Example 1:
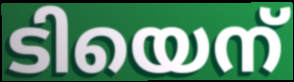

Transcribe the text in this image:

ടിയെന്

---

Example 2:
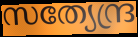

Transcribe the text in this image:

സത്യേന്ദ്ര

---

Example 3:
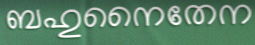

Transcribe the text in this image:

ബഹുനൈതേന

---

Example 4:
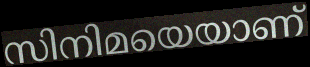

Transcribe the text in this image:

സിനിമയെയാണ്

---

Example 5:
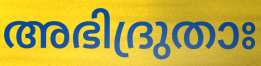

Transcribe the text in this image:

അഭിദ്രുതാഃ